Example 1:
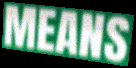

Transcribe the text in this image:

MEANS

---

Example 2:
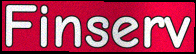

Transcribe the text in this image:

Finserv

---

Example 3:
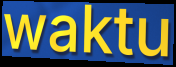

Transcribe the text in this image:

waktu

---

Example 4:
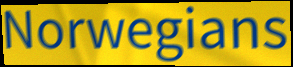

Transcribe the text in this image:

Norwegians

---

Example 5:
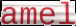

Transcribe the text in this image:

amel